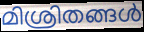
മിശ്രിതങ്ങൾ